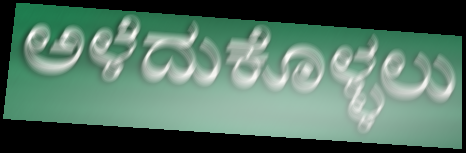
ಅಳೆದುಕೊಳ್ಳಲು